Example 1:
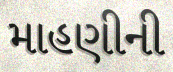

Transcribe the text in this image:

માહણીની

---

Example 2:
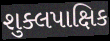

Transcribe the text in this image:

શુક્લપાક્ષિક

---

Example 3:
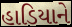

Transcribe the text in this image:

હાડિયાને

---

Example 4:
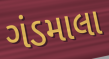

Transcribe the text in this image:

ગંડમાલા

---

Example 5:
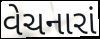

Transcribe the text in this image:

વેચનારાં